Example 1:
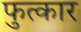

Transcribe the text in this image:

फुत्कार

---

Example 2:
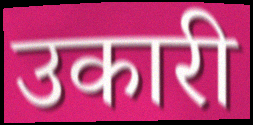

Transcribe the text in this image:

उकारी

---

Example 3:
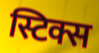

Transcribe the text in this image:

स्टिक्स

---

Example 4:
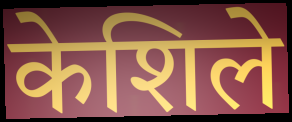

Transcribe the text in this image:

केशिले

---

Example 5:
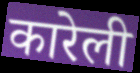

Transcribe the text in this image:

कारेली